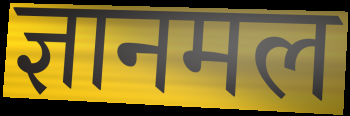
ज्ञानमल